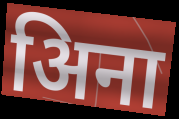
अिना